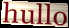
hullo